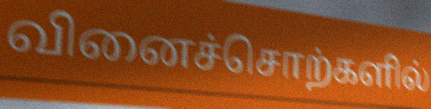
வினைச்சொற்களில்